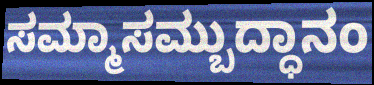
ಸಮ್ಮಾಸಮ್ಬುದ್ಧಾನಂ